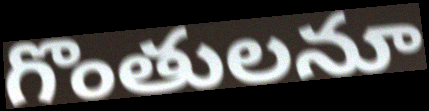
గొంతులనూ